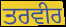
ਤਰਵੀਰ